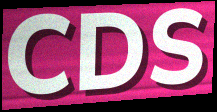
CDS